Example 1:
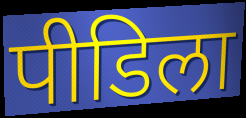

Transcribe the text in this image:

पीडिला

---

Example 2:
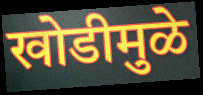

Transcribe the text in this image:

खोडीमुळे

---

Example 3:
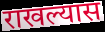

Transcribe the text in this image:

राखल्यास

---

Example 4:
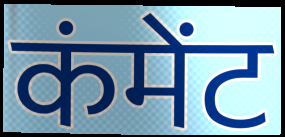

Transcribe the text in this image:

कंमेंट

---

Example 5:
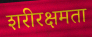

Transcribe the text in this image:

शरीरक्षमता